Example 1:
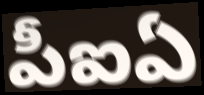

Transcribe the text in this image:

పీఐఏ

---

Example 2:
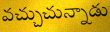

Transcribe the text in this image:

వచ్చుచున్నాడు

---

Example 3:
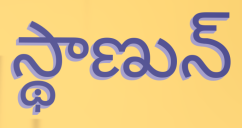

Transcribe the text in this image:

స్థాణున్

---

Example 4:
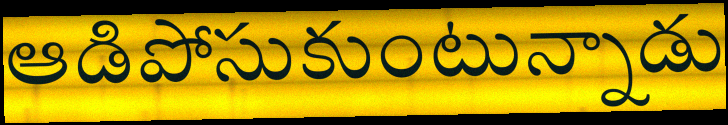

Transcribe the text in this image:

ఆడిపోసుకుంటున్నాడు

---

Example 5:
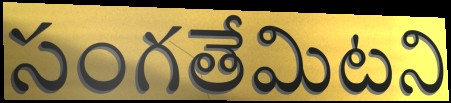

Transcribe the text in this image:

సంగతేమిటని